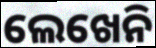
ଲେଖେନି